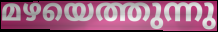
മഴയെത്തുന്നു